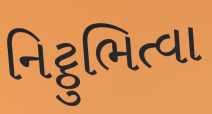
નિટ્ઠુભિત્વા